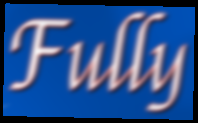
Fully